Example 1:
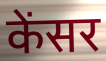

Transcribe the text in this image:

केंसर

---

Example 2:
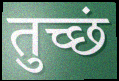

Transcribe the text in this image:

तुच्छं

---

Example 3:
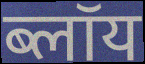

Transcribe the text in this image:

ब्लॉय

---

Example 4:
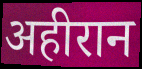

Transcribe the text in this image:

अहीरान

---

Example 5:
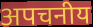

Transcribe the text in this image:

अपचनीय